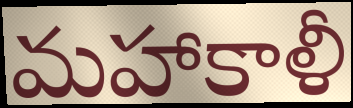
మహాకాళీ